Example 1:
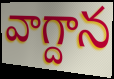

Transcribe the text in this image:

వాగ్దాన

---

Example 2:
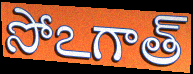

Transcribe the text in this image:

సోఽగాత్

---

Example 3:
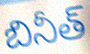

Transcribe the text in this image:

బినీత్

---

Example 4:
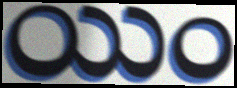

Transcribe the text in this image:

యిం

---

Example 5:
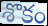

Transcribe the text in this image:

శొకం